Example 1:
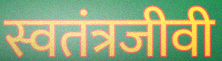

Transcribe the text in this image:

स्वतंत्रजीवी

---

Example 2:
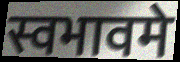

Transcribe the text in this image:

स्वभावमे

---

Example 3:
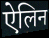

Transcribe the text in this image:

ऐलिन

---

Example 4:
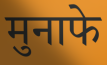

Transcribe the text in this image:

मुनाफे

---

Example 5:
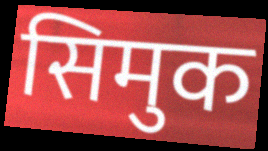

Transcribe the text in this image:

सिमुक